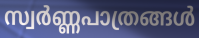
സ്വർണ്ണപാത്രങ്ങൾ